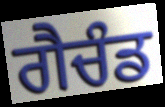
ਗੈਚੰਡ